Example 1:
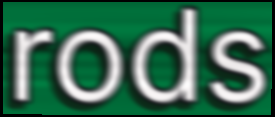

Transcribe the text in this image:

rods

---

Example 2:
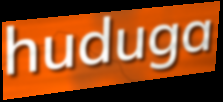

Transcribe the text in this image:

huduga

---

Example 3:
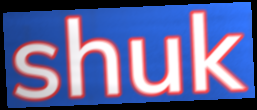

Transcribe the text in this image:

shuk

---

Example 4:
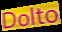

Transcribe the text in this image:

Dolto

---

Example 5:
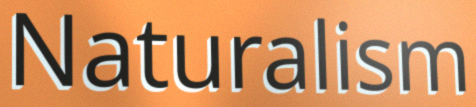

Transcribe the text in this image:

Naturalism